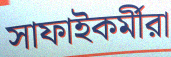
সাফাইকর্মীরা